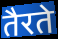
तैरते